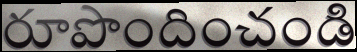
రూపొందించండి